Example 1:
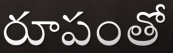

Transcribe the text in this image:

రూపంతో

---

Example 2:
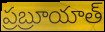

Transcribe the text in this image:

ప్రబ్రూయాత్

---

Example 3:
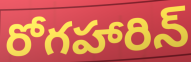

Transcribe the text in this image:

రోగహారిన్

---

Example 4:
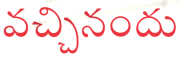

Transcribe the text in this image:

వచ్చినందు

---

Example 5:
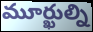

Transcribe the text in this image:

మూర్ఖుల్ని